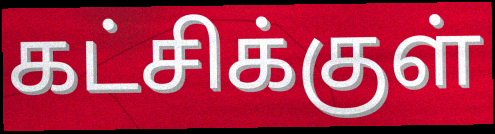
கட்சிக்குள்